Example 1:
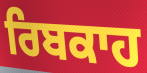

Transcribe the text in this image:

ਰਿਬਕਾਹ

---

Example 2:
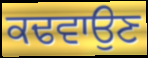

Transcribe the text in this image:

ਕਢਵਾਉਣ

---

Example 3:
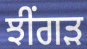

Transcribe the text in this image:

ਝੀਂਗੜ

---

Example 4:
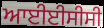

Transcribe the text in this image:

ਆਈਈਸੀਸੀ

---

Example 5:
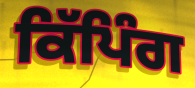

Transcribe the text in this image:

ਕਿੱਪਿੰਗ